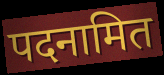
पदनामित